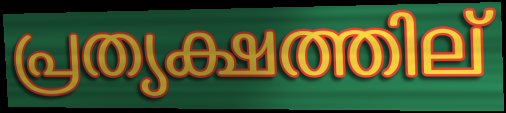
പ്രത്യക്ഷത്തില്